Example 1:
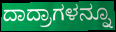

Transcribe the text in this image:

ದಾದ್ರಾಗಳನ್ನೂ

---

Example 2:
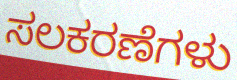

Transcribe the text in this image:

ಸಲಕರಣೆಗಳು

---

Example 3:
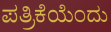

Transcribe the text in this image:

ಪತ್ರಿಕೆಯೆಂದು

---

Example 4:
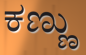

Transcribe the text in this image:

ಕಣ್ಣು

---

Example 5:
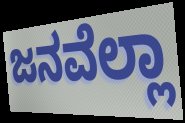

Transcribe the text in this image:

ಜನವೆಲ್ಲಾ